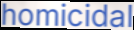
homicidal